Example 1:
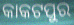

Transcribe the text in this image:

କାକଟପୁର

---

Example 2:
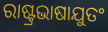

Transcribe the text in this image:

ରାଷ୍ଟ୍ରଭାଷାଯୁତଂ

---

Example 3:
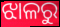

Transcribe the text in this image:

ଝାଳରୁ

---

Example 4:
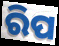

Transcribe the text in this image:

ରିପ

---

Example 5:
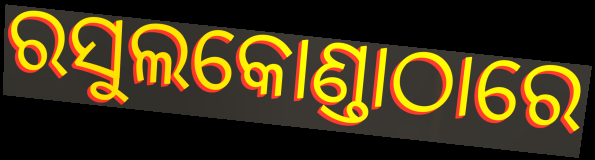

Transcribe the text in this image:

ରସୁଲକୋଣ୍ଡାଠାରେ